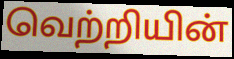
வெற்றியின்